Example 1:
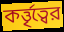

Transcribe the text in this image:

কর্ত্তৃত্বের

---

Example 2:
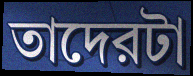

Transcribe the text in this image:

তাদেরটা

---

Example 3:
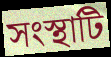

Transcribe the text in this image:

সংস্থাটি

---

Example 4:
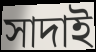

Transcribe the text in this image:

সাদাই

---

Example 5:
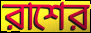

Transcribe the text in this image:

রাশের